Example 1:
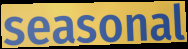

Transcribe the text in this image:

seasonal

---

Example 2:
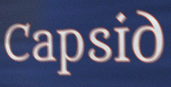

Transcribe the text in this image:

Capsid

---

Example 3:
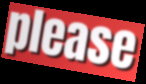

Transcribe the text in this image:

please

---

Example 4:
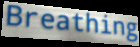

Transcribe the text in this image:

Breathing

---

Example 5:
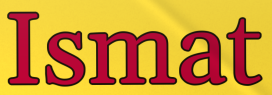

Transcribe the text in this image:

Ismat